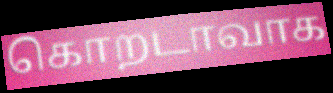
கொறடாவாக